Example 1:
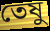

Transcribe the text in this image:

তেষু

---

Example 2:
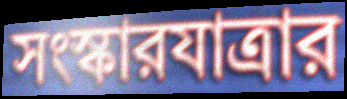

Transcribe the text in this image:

সংস্কারযাত্রার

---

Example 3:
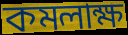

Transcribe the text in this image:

কমলাক্ষ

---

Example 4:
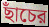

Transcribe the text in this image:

ছাঁচের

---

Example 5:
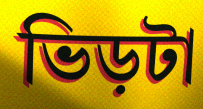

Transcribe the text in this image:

ভিড়টা